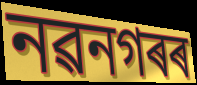
নৱনগৰৰ